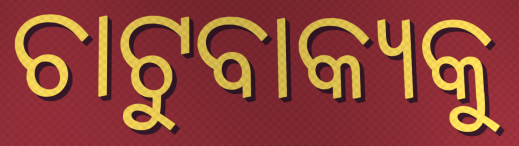
ଚାଟୁବାକ୍ୟକୁ